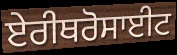
ਏਰੀਥਰੋਸਾਈਟ